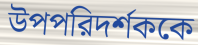
উপপরিদর্শককে